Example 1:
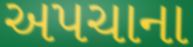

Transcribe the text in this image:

અપચાના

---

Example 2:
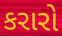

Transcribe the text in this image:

કરારો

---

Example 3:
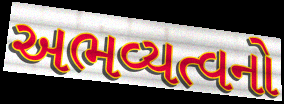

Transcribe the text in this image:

અભવ્યત્વનો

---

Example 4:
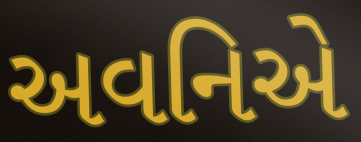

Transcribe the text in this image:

અવનિએ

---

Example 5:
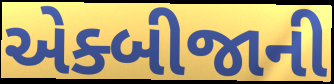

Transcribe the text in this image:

એક્બીજાની